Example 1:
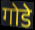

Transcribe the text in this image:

गोडे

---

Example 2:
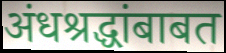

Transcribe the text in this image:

अंधश्रद्धांबाबत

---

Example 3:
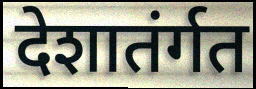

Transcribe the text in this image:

देशातंर्गत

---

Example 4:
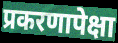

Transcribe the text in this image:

प्रकरणापेक्षा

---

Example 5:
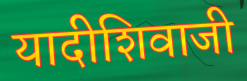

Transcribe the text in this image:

यादीशिवाजी